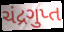
ચંદ્રગુપ્ત